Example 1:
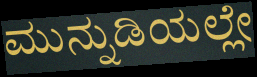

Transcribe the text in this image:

ಮುನ್ನುಡಿಯಲ್ಲೇ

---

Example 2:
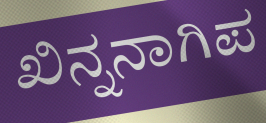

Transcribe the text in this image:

ಖಿನ್ನನಾಗಿಪ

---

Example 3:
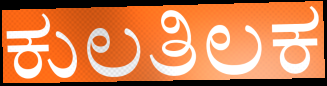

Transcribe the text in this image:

ಕುಲತಿಲಕ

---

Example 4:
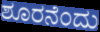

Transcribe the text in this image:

ಶೂರನೆಂದು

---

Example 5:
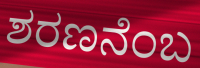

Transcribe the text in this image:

ಶರಣನೆಂಬ